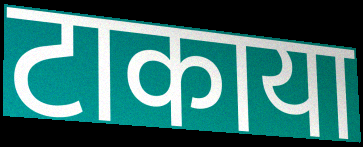
टाकाया